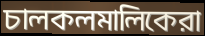
চালকলমালিকেরা